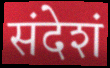
संदेशं